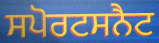
ਸਪੋਰਟਸਨੈਟ